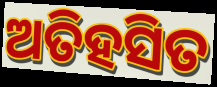
ଅତିହସିତ